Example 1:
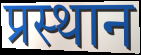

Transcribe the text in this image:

प्रस्थान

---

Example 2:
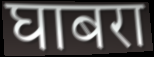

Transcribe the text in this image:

घाबरा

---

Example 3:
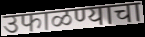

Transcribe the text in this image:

उफाळण्याचा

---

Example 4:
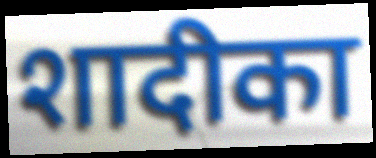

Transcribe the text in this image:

शादीका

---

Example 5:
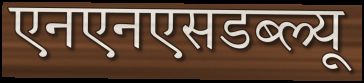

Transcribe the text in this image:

एनएनएसडब्ल्यू